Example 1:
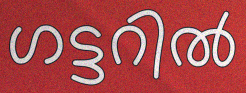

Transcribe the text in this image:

ഗട്ടറിൽ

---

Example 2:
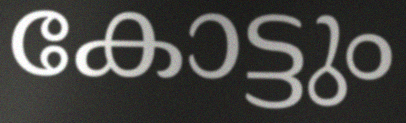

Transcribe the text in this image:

കോട്ടും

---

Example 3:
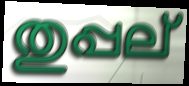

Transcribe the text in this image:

തുപ്പല്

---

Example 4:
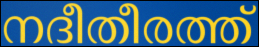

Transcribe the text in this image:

നദീതീരത്ത്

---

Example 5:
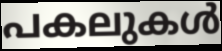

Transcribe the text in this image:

പകലുകൾ